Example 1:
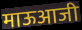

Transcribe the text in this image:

माऊआजी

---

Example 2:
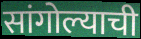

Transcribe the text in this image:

सांगोल्याची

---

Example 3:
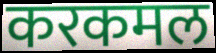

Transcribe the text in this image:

करकमल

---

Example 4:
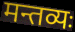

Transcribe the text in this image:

मन्तव्यः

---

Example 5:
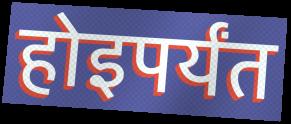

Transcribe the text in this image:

होइपर्यंत